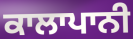
ਕਾਲਾਪਾਨੀ